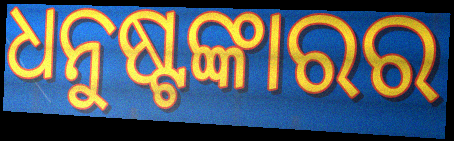
ଧନୁଷ୍ଟଙ୍କାରର